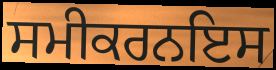
ਸਮੀਕਰਨਇਸ